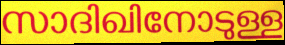
സാദിഖിനോടുള്ള